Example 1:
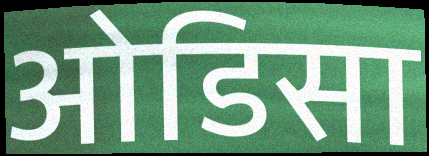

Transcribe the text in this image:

ओडिसा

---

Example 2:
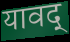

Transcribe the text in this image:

यावद्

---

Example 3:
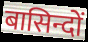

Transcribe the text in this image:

बासिन्दों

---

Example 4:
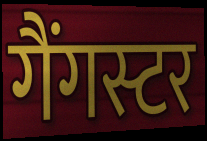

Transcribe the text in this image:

गैंगस्‍टर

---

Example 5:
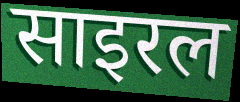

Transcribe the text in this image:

साइरल